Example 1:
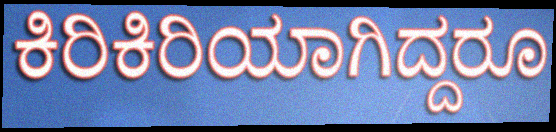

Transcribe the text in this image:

ಕಿರಿಕಿರಿಯಾಗಿದ್ದರೂ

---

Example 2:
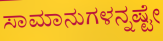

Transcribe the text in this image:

ಸಾಮಾನುಗಳನ್ನಷ್ಟೇ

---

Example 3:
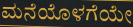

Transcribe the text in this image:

ಮನೆಯೊಳಗೆಯೇ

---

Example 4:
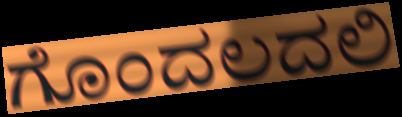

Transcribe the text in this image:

ಗೊಂದಲದಲಿ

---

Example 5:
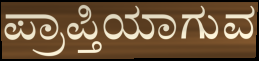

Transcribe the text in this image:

ಪ್ರಾಪ್ತಿಯಾಗುವ